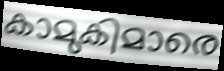
കാമുകിമാരെ